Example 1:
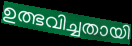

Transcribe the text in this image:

ഉത്ഭവിച്ചതായി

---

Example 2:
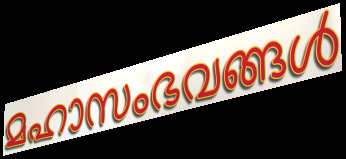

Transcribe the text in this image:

മഹാസംഭവങ്ങൾ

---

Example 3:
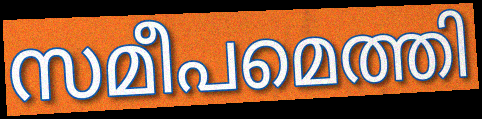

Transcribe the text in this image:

സമീപമെത്തി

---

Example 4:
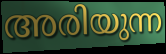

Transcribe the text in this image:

അരിയുന്ന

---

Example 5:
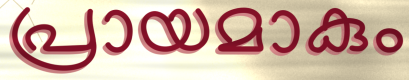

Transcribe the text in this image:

പ്രായമാകും